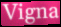
Vigna